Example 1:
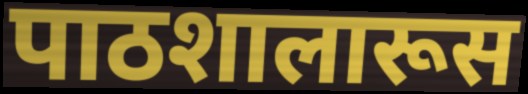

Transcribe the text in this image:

पाठशालारूस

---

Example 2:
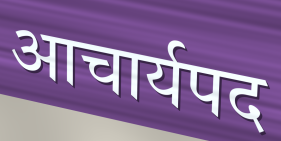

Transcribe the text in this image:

आचार्यपद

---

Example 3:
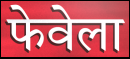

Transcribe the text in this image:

फेवेला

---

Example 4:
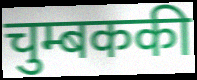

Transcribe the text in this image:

चुम्बककी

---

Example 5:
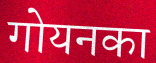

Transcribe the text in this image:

गोयनका